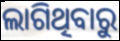
ଲାଗିଥିବାରୁ